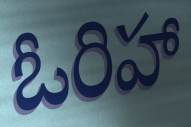
ఓరిహా